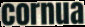
cornua